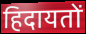
हिदायतों